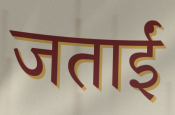
जताईं